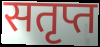
सतृप्त